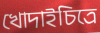
খোদাইচিত্রে